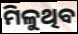
ମିଳୁଥିବ